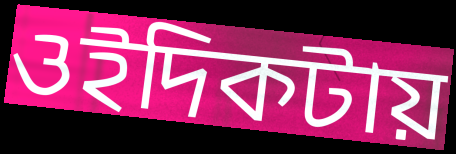
ওইদিকটায়